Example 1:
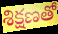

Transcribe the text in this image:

శిక్షణతో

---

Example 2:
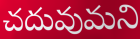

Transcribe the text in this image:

చదువుమని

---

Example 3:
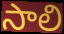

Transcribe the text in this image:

సాలి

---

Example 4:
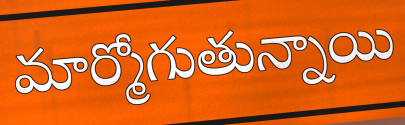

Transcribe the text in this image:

మార్మోగుతున్నాయి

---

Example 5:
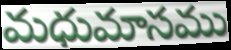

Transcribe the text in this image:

మధుమాసము